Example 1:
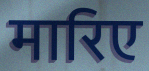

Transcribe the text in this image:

मारिए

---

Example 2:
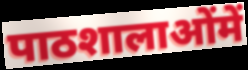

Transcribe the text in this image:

पाठशालाओंमें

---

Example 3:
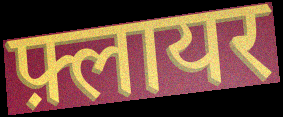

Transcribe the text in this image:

फ़्लायर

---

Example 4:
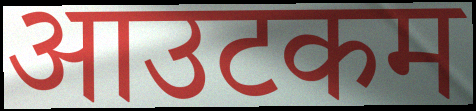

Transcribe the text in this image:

आउटकम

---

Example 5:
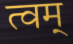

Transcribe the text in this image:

त्वम्